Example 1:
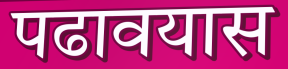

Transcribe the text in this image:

पढावयास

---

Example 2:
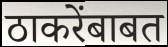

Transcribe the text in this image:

ठाकरेंबाबत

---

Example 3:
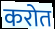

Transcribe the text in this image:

करोत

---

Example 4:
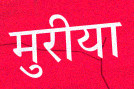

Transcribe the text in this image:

मुरीया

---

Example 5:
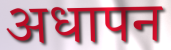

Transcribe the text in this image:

अधापन